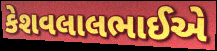
કેશવલાલભાઈએ